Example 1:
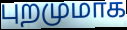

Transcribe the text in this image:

புறமுமாக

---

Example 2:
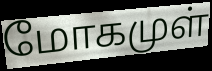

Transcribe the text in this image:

மோகமுள்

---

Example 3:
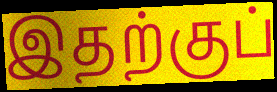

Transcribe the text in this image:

இதற்குப்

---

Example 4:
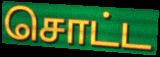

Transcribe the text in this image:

சொட்ட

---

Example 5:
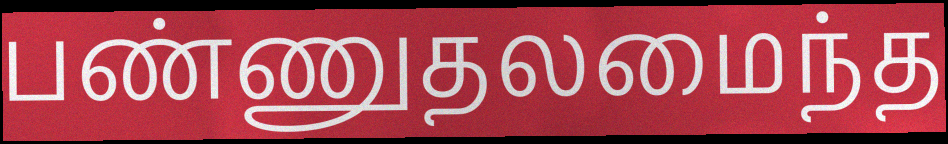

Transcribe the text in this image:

பண்ணுதலமைந்த